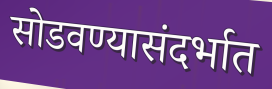
सोडवण्यासंदर्भात